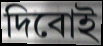
দিবোই